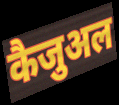
कैजुअल